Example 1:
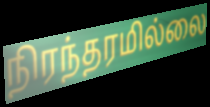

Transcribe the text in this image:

நிரந்தரமில்லை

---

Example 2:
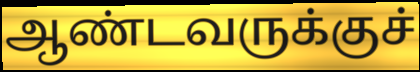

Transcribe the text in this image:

ஆண்டவருக்குச்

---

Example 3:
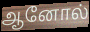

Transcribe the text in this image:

ஆனோல்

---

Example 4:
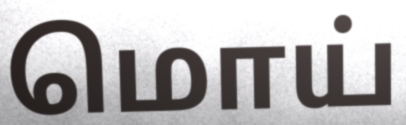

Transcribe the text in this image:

மொய்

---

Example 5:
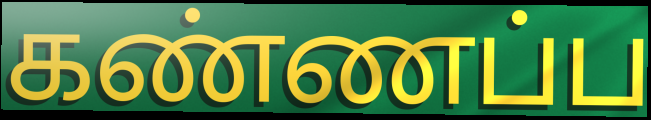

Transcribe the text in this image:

கண்ணப்ப